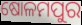
ଷୋଳମପୁର